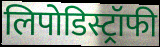
लिपोडिस्ट्रॉफी